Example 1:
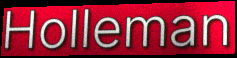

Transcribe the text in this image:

Holleman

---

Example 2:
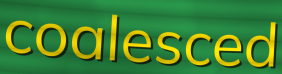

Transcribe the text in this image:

coalesced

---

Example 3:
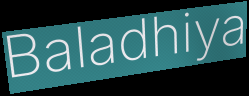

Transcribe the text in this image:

Baladhiya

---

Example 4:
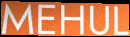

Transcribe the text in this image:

MEHUL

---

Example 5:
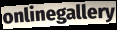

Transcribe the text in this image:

onlinegallery